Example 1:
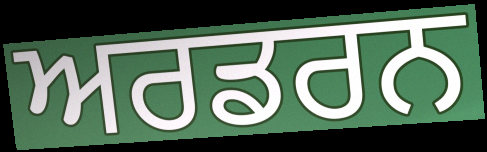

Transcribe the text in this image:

ਅਰਡਰਨ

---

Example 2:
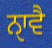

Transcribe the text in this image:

ਨੑਾਵੈ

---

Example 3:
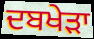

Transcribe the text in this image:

ਦਬਖੇੜਾ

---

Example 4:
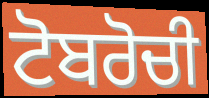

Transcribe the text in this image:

ਟੋਬਰੋਚੀ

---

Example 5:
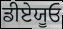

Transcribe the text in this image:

ਡੀਏਯੂਓ